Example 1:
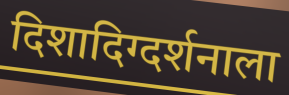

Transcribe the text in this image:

दिशादिग्दर्शनाला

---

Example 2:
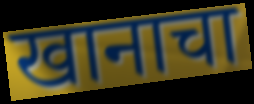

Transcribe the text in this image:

खानाचा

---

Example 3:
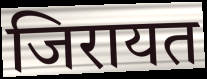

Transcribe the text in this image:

जिरायत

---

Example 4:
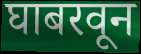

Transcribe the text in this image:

घाबरवून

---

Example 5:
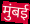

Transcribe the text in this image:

मुंबई